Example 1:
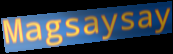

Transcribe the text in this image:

Magsaysay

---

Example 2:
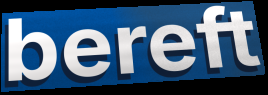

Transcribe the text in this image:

bereft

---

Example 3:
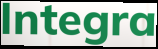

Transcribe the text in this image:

Integra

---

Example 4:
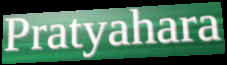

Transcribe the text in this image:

Pratyahara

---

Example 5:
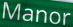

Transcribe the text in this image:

Manor